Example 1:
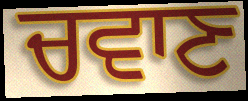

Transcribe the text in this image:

ਚਵਾਣ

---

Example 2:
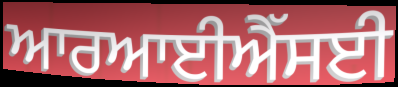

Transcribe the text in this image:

ਆਰਆਈਐੱਸਈ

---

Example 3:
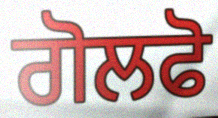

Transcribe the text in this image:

ਗੋਲਫੋ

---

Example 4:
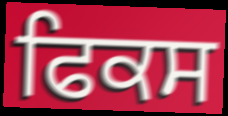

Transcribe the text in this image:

ਫਿਕਸ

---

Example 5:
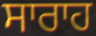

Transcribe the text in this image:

ਸਾਰਾਹ